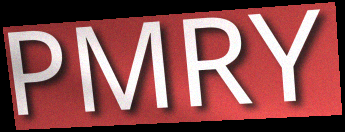
PMRY